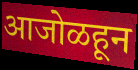
आजोळहून